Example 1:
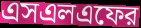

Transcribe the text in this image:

এসএলএফের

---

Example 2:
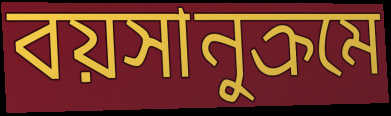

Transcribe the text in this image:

বয়সানুক্রমে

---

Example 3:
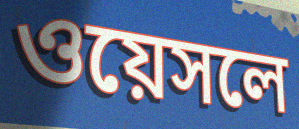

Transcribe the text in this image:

ওয়েসলে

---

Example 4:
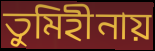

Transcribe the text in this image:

তুমিহীনায়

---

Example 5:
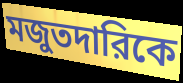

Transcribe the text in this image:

মজুতদারিকে